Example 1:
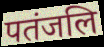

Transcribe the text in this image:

पतंजलि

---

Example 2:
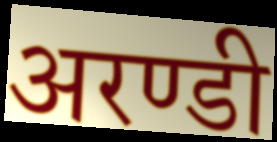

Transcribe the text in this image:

अरण्डी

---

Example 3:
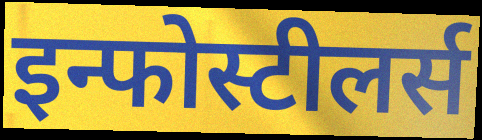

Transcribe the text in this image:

इन्फोस्टीलर्स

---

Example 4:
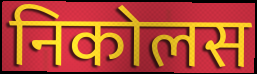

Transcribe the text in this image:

निकोलस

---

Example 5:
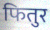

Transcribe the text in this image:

फितुर